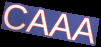
CAAA